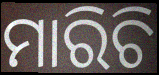
ମାରିଚି